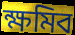
ক্ষমিব